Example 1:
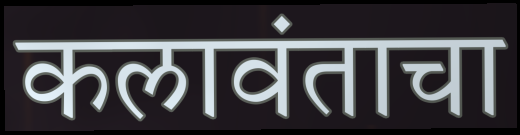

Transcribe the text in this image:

कलावंताचा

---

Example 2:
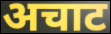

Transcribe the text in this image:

अचाट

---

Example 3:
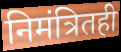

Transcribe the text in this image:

निमंत्रितही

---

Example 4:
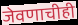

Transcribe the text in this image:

जेवणाचीही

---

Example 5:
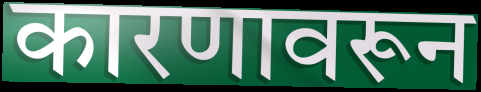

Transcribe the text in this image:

कारणावरून